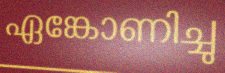
ഏങ്കോണിച്ചു